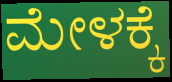
ಮೇಳಕ್ಕೆ